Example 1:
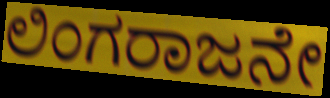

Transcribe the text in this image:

ಲಿಂಗರಾಜನೇ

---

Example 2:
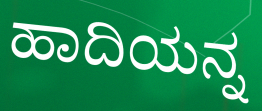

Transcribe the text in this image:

ಹಾದಿಯನ್ನ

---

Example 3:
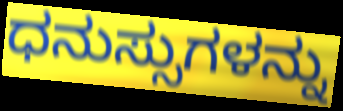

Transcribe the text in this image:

ಧನುಸ್ಸುಗಳನ್ನು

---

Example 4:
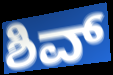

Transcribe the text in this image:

ಶಿವ್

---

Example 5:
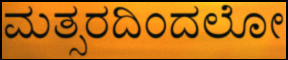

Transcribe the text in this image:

ಮತ್ಸರದಿಂದಲೋ